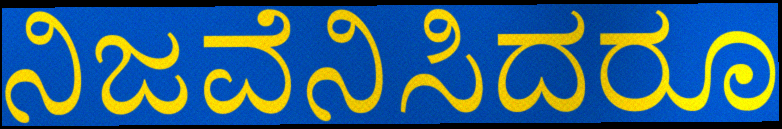
ನಿಜವೆನಿಸಿದರೂ